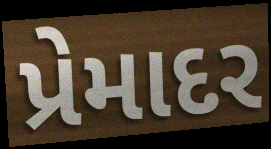
પ્રેમાદર